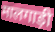
मालगाड़ी